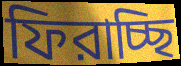
ফিরাচ্ছি